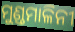
ମୁଣ୍ଡମାଳିନୀ